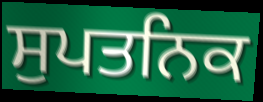
ਸੁਪਤਨਿਕ